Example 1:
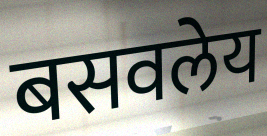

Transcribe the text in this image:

बसवलेय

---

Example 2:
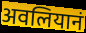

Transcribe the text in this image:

अवलियानं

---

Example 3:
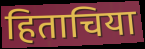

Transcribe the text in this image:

हिताचिया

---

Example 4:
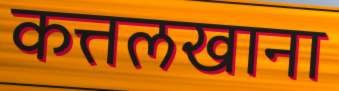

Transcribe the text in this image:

कत्तलखाना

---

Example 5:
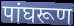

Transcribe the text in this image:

पांघरूण